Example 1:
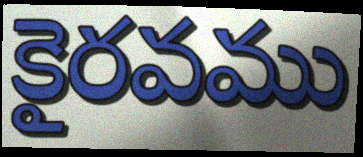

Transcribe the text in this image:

కైరవము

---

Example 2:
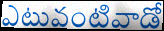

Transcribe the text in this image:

ఎటువంటివాడో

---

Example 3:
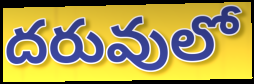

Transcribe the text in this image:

దరువులో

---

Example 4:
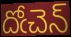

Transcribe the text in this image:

దోఁచెన్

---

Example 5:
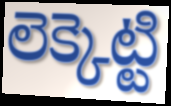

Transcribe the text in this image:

లెక్కెట్టి